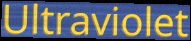
Ultraviolet